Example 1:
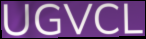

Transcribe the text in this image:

UGVCL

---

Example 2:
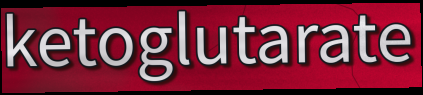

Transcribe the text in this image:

ketoglutarate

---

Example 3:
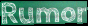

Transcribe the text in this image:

Rumor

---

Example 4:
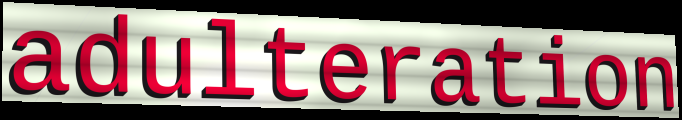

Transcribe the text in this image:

adulteration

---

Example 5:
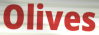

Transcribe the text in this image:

Olives